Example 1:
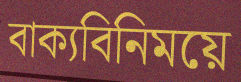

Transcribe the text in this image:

বাক্যবিনিময়ে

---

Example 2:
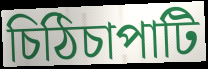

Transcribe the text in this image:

চিঠিচাপাটি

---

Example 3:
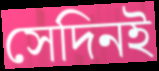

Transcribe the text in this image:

সেদিনই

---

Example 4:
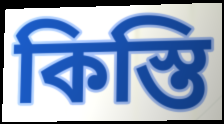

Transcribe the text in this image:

কিস্তি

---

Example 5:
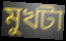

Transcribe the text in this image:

মুখটা